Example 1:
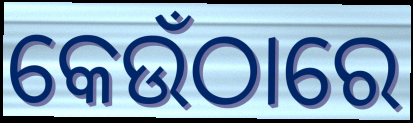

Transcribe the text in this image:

କେଉଁଠାରେ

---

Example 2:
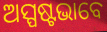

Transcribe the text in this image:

ଅସ୍ପଷ୍ଟଭାବେ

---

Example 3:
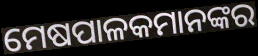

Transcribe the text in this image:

ମେଷପାଳକମାନଙ୍କର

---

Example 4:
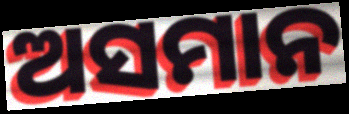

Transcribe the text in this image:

ଅସମାନ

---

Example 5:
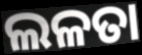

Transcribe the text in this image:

ଲଳତା